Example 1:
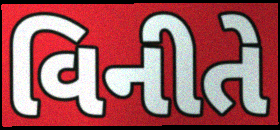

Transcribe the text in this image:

વિનીતે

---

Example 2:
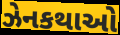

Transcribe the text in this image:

ઝેનકથાઓ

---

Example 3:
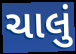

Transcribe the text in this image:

ચાલું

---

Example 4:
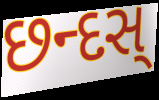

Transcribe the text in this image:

છન્દસ્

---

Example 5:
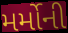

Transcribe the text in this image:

મર્મોની